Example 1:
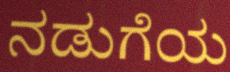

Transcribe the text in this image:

ನಡುಗೆಯ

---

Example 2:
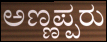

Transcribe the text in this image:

ಅಣ್ಣಪ್ಪರು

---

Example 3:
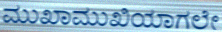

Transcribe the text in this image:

ಮುಖಾಮುಖಿಯಾಗಲೇ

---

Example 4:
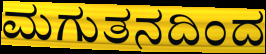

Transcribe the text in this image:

ಮಗುತನದಿಂದ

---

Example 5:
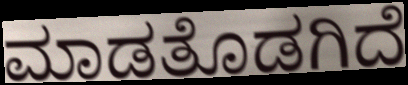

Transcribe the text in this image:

ಮಾಡತೊಡಗಿದೆ